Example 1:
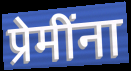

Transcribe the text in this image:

प्रेमींना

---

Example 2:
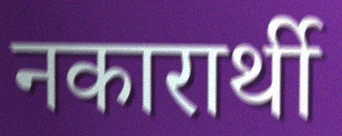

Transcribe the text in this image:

नकारार्थी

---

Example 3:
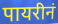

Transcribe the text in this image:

पायरीनं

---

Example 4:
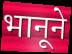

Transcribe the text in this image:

भानूने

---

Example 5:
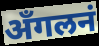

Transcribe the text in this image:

अँगलनं